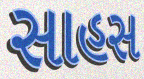
સાહસ